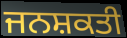
ਜਨਸ਼ਕਤੀ